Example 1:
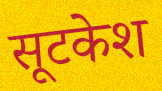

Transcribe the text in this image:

सूटकेश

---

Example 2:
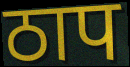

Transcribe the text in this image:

ठाप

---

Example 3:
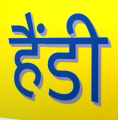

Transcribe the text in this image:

हैंडी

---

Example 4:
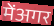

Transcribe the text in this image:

मेंअगर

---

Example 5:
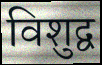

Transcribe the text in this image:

विशुद्व